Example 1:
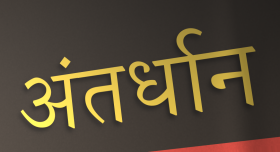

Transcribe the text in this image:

अंतर्धान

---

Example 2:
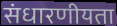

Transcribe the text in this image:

संधारणीयता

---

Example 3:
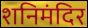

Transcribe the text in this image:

शनिमंदिर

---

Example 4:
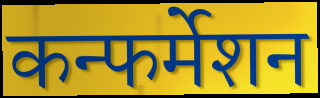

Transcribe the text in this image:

कन्फर्मेशन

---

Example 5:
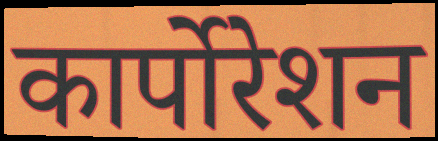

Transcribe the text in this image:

कार्पोरेशन